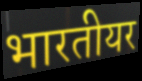
भारतीयर